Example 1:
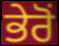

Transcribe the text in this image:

ਭੇਰੋਂ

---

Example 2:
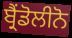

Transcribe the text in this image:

ਬ੍ਰੈਂਡੋਲੀਨੋ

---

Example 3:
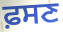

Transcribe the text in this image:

ਫ਼ਸਣ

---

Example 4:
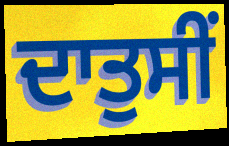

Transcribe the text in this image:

ਦਾਤੁਸੀਂ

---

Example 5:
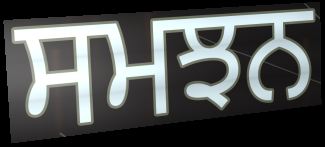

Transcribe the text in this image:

ਸਮਝਨ